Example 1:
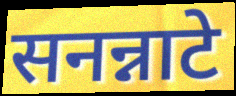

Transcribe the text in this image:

सनन्नाटे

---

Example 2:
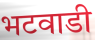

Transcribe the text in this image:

भटवाडी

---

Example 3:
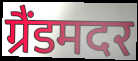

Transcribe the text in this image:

ग्रैंडमदर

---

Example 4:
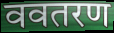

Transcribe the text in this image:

ववतरण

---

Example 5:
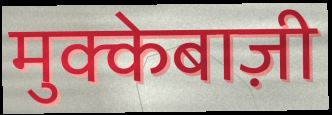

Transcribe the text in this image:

मुक्केबाज़ी